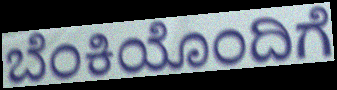
ಬೆಂಕಿಯೊಂದಿಗೆ